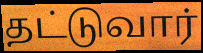
தட்டுவார்